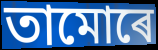
তামোৰে